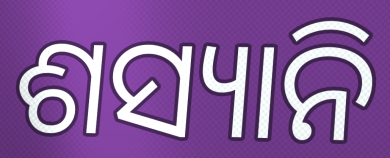
ଶସ୍ୟାନି